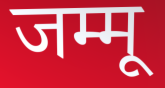
जम्मू